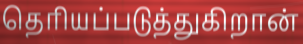
தெரியப்படுத்துகிறான்